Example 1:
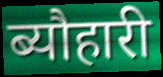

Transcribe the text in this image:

ब्यौहारी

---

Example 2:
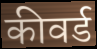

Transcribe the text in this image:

कीवर्ड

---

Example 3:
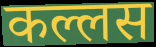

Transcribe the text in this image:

कल्लस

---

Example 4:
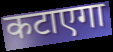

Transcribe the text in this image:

कटाएगा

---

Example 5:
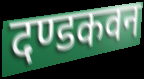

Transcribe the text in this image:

दण्डकवन